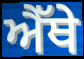
ਐੱਥੇ